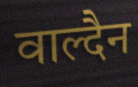
वाल्दैन